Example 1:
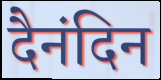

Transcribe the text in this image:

दैनंदिन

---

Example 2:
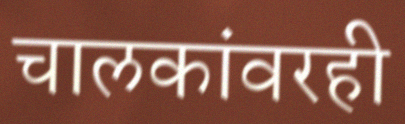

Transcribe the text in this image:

चालकांवरही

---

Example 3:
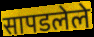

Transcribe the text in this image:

सापडलेले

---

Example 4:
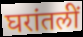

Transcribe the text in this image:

घरांतलीं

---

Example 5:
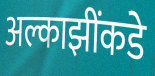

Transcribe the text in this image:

अल्काझींकडे